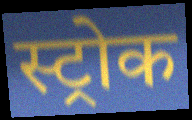
स्‍ट्रोक